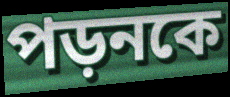
পড়নকে